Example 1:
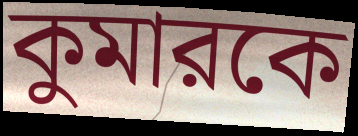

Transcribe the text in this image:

কুমারকে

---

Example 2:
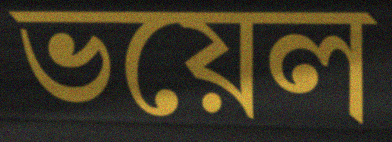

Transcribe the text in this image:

ভয়েল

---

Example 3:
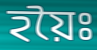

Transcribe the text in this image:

হয়ৈঃ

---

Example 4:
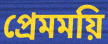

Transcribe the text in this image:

প্রেমময়ি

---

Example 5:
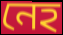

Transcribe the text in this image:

নেহ